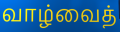
வாழ்வைத்